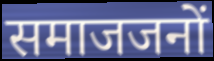
समाजजनों